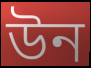
উন